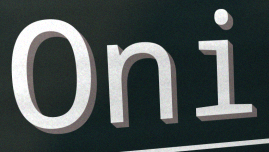
Oni